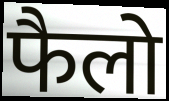
फैलो